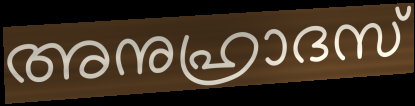
അനുഹ്രാദസ്